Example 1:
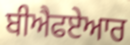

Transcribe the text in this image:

ਬੀਐਫਏਆਰ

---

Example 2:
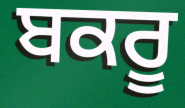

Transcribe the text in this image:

ਬਕਰੂ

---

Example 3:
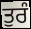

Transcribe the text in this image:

ਤੁਰੰ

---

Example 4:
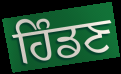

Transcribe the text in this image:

ਹਿੰਡਣ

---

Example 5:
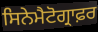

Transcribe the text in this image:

ਸਿਨੇਮੈਟੋਗ੍ਰਾਫ਼ਰ